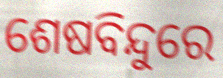
ଶେଷବିନ୍ଦୁରେ